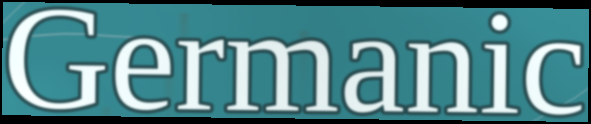
Germanic